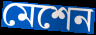
মেশেন